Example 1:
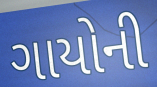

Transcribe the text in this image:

ગાયોની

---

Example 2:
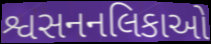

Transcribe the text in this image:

શ્વસનનલિકાઓ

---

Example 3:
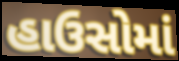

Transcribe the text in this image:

હાઉસોમાં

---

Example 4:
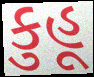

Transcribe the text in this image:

કુહૂ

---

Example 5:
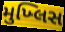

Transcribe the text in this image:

મુખ્લિસ